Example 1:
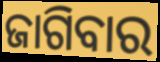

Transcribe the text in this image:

ଜାଗିବାର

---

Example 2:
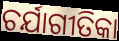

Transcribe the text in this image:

ଚର୍ଯାଗୀତିକା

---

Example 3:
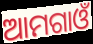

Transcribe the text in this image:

ଆମଗାଓଁ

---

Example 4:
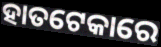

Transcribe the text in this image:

ହାତଟେକାରେ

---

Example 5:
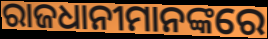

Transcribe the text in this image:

ରାଜଧାନୀମାନଙ୍କରେ